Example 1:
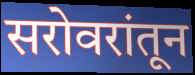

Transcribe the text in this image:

सरोवरांतून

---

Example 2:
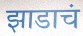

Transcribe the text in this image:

झाडाचं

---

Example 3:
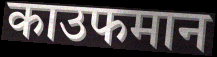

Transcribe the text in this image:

काउफमान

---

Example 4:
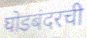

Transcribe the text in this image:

घोडबंदरची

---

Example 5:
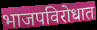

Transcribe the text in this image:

भाजपविरोधात